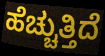
ಹೆಚ್ಚುತ್ತಿದೆ